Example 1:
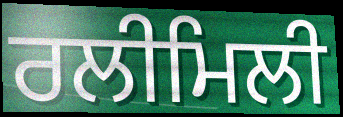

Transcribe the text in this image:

ਰਲੀਮਿਲੀ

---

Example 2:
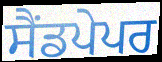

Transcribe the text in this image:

ਸੈਂਡਪੇਪਰ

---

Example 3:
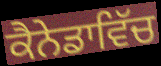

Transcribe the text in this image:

ਕੈਨੇਡਾਵਿੱਚ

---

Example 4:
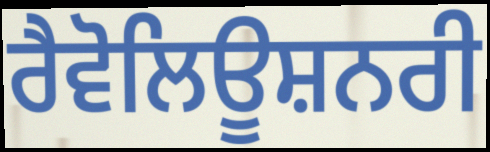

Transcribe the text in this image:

ਰੈਵੋਲਿਊਸ਼ਨਰੀ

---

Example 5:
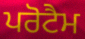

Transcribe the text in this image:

ਪਰੋਟੈਮ